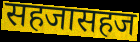
सहजासहज